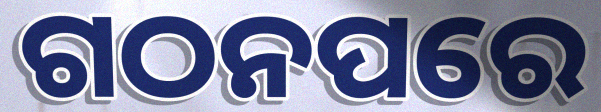
ଗଠନପରେ